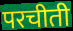
परचीती